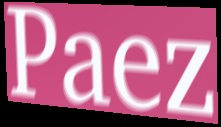
Paez